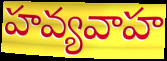
హవ్యవాహ